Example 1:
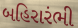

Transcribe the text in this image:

બહિરારંભી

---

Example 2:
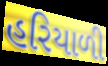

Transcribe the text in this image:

હરિયાળી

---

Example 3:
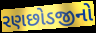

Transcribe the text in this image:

રણછોડજીનો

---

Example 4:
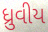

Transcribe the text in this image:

ધ્રુવીય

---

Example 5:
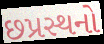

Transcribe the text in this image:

છપ્રસ્થનો